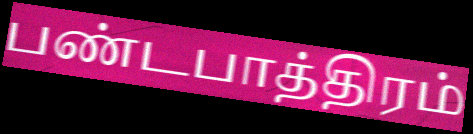
பண்டபாத்திரம்